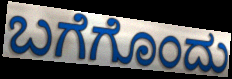
ಬಗೆಗೊಂದು